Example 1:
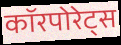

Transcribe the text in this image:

कॉरपोरेट्स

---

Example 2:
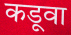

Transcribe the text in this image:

कडूवा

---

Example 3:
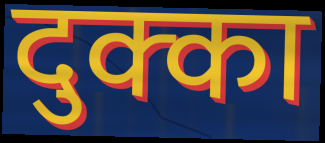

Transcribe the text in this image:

दुक्‍का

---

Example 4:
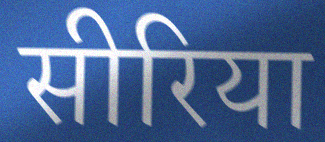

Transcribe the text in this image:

सीरिया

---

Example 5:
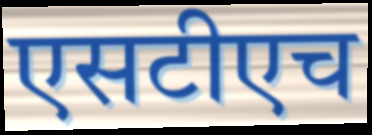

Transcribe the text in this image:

एसटीएच